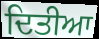
ਦਿਤੀਆ